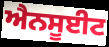
ਐਨਸੂਈਟ